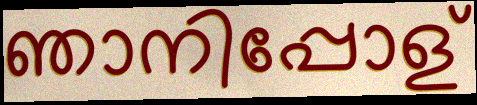
ഞാനിപ്പോള്